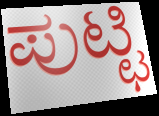
ಪುಟ್ಟಿ